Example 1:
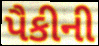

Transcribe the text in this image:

પૈકીની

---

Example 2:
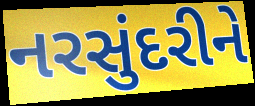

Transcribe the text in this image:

નરસુંદરીને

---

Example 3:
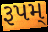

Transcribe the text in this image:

રૂપમ્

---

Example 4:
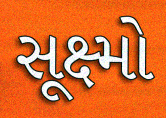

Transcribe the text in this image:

સૂક્ષ્મો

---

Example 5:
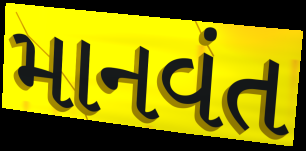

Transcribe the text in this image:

માનવંત